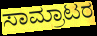
ಸಾಮ್ರಾಟರ